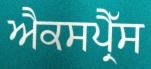
ਐਕਸਪ੍ਰੈੱਸ